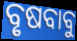
ବୃଷବାବୁ